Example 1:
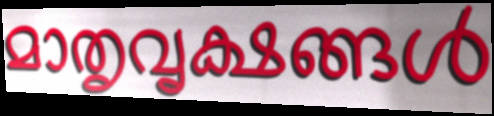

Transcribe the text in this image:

മാതൃവൃക്ഷങ്ങൾ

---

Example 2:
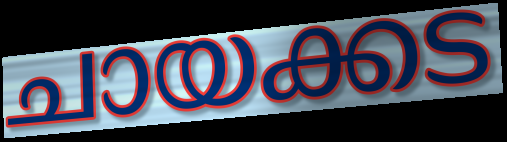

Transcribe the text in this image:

ചായക്കട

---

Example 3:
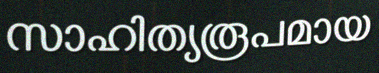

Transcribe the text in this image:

സാഹിത്യരൂപമായ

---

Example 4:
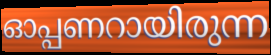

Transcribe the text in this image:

ഓപ്പണറായിരുന്ന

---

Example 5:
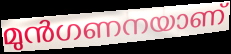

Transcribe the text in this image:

മുൻഗണനയാണ്